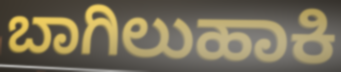
ಬಾಗಿಲುಹಾಕಿ